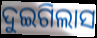
ଦୁଇଗିଲାସ